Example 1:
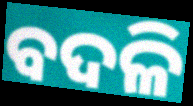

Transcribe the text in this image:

ବଦଳି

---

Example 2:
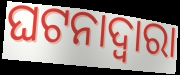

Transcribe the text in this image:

ଘଟନାଦ୍ୱାରା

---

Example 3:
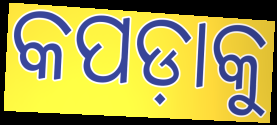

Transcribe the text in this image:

କପଡ଼ାକୁ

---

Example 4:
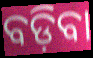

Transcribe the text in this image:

ବଡ଼ିବା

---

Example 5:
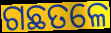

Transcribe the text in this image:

ଗଛତଳେ